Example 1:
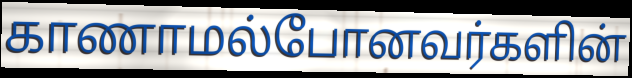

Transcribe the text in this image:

காணாமல்போனவர்களின்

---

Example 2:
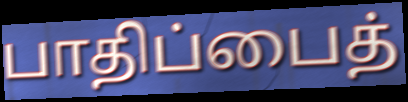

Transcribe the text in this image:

பாதிப்பைத்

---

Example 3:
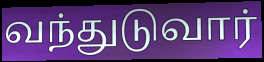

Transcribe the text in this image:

வந்துடுவார்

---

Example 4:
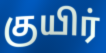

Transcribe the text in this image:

குயிர்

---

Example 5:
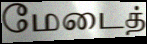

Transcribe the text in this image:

மேடைத்